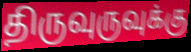
திருவுருவுக்கு